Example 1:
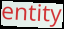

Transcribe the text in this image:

entity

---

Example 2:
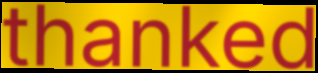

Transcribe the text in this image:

thanked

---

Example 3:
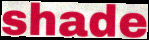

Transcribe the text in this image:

shade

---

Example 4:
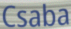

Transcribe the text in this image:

Csaba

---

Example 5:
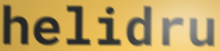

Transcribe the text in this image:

helidru